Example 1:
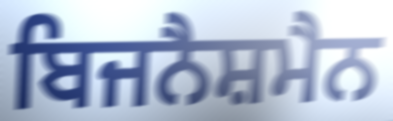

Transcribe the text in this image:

ਬਿਜਨੈਸ਼ਮੈਨ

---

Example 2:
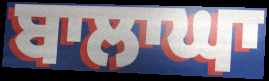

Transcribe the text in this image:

ਬਾਲਾਘਾ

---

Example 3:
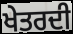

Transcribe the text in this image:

ਖੇਤਰਦੀ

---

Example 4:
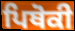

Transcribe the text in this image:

ਪਿਥੋਕੀ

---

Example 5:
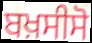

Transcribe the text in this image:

ਬਖ਼ਸੀਸੋ